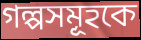
গল্পসমূহকে